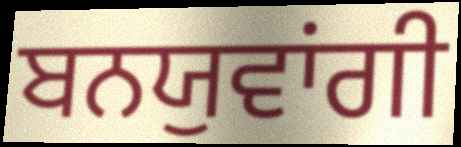
ਬਨਯੁਵਾਂਗੀ